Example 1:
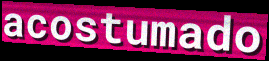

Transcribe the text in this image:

acostumado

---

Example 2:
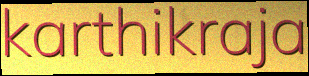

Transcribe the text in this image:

karthikraja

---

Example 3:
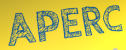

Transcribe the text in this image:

APERC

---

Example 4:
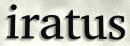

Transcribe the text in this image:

iratus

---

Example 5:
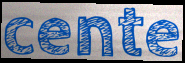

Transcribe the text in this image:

cente